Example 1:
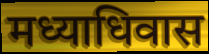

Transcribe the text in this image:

मध्याधिवास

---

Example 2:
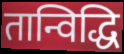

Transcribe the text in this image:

तान्विद्धि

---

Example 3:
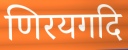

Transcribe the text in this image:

णिरयगदि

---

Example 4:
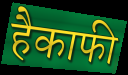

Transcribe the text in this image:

हैकाफी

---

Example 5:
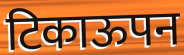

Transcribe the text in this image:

टिकाऊपन